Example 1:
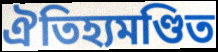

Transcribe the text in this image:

ঐতিহ্যমণ্ডিত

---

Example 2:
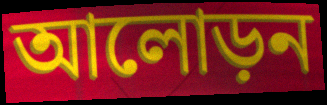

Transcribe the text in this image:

আলোড়ন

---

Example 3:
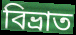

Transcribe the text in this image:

বিভ্ৰাত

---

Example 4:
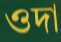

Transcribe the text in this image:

ওদা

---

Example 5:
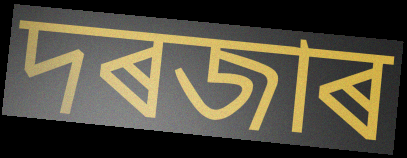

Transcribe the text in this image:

দৰজাৰ